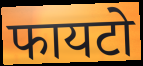
फायटो